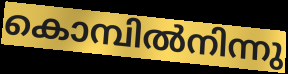
കൊമ്പിൽനിന്നു